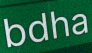
bdha